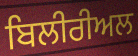
ਬਿਲੀਰੀਅਲ